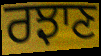
ਰਝਾਣ